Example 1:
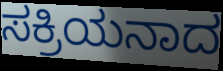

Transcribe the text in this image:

ಸಕ್ರಿಯನಾದ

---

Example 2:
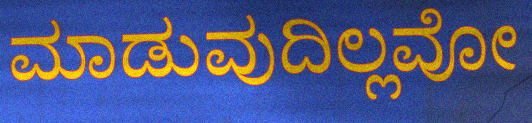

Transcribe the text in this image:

ಮಾಡುವುದಿಲ್ಲವೋ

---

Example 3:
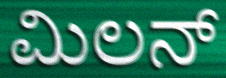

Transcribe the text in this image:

ಮಿಲನ್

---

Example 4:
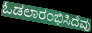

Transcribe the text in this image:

ಓಡಲಾರಂಭಿಸಿದೆವು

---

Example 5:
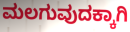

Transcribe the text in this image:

ಮಲಗುವುದಕ್ಕಾಗಿ